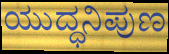
ಯುದ್ಧನಿಪುಣ